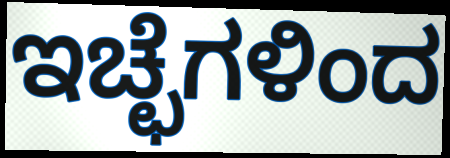
ಇಚ್ಛೆಗಳಿಂದ